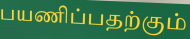
பயணிப்பதற்கும்